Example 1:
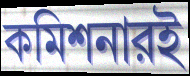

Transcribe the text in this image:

কমিশনারই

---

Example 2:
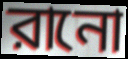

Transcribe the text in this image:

রানো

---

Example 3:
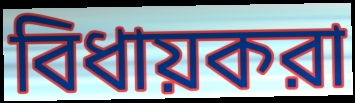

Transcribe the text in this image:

বিধায়করা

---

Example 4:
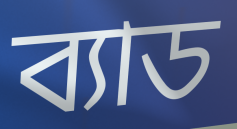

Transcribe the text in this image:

ব্যাড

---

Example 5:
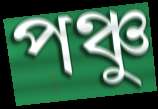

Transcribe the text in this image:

পঞ্চু